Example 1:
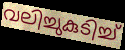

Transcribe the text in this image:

വലിച്ചുകുടിച്ച്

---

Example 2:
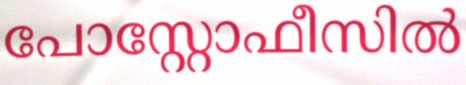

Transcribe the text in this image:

പോസ്റ്റോഫീസിൽ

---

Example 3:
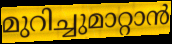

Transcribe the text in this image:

മുറിച്ചുമാറ്റാൻ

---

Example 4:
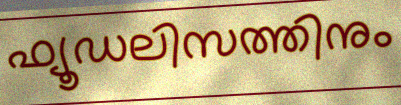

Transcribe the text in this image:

ഫ്യൂഡലിസത്തിനും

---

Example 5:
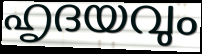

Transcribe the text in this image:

ഹൃദയവും